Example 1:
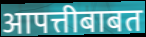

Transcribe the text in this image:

आपत्तीबाबत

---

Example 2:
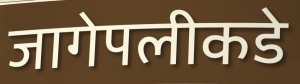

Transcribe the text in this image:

जागेपलीकडे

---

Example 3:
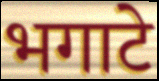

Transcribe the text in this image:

भगाटे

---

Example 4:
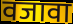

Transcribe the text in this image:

वजावा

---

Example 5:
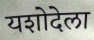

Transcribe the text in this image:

यशोदेला